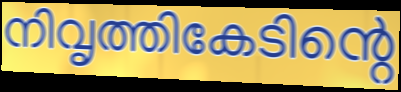
നിവൃത്തികേടിന്റെ